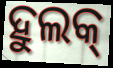
ହୁଲକ୍